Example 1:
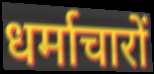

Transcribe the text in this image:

धर्माचारों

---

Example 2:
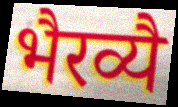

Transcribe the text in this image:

भैरव्यै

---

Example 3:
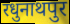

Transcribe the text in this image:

रधुनाथपुर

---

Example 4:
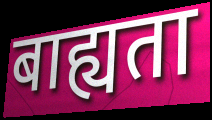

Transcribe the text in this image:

बाह्यता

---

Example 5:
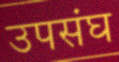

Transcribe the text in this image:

उपसंघ